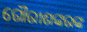
ଗୌରୀଶଙ୍କରଙ୍କ